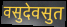
वसुदेवसुत